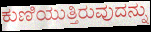
ಕುಣಿಯುತ್ತಿರುವುದನ್ನು